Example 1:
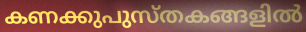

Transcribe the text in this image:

കണക്കുപുസ്തകങ്ങളിൽ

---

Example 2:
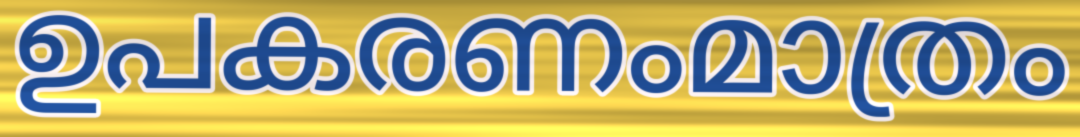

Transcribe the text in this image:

ഉപകരണംമാത്രം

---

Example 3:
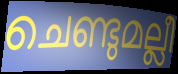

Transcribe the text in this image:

ചെണ്ടുമല്ലീ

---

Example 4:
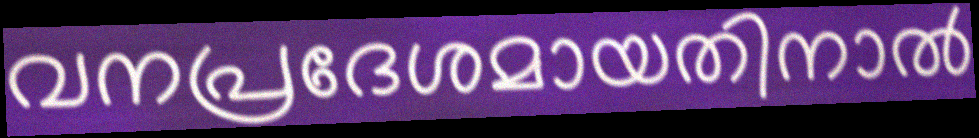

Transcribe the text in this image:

വനപ്രദേശമായതിനാൽ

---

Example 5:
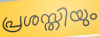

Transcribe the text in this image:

പ്രശസ്തിയും